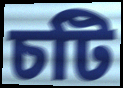
চটি